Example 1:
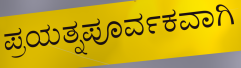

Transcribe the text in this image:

ಪ್ರಯತ್ನಪೂರ್ವಕವಾಗಿ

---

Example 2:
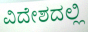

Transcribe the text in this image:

ವಿದೇಶದಲ್ಲಿ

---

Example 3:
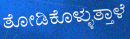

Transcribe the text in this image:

ತೋಡಿಕೊಳ್ಳುತ್ತಾಳೆ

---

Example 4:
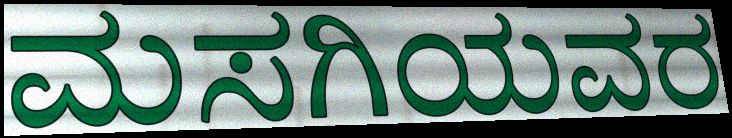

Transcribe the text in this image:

ಮಸಗಿಯವರ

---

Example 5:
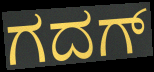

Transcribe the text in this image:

ಗದಗ್